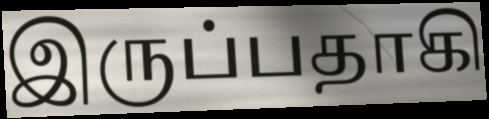
இருப்பதாகி